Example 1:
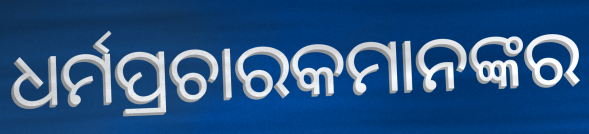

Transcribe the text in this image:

ଧର୍ମପ୍ରଚାରକମାନଙ୍କର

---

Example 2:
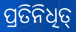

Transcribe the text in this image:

ପ୍ରତିନିଧିତ୍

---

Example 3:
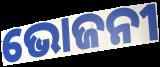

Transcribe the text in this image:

ଭୋଜନୀ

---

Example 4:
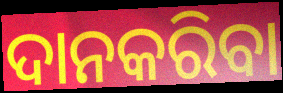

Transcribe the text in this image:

ଦାନକରିବା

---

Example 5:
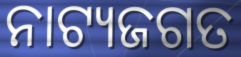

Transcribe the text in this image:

ନାଟ୍ୟଜଗତ